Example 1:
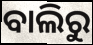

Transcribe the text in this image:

ବାଲିରୁ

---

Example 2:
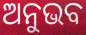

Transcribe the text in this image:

ଅନୁଭବ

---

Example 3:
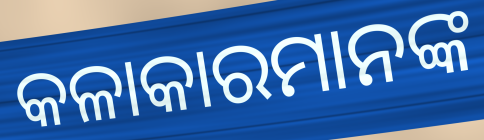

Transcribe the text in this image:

କଳାକାରମାନଙ୍କ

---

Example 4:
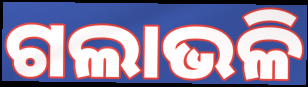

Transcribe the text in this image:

ଗଲାଭଳି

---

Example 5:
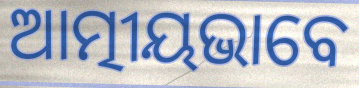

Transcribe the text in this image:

ଆତ୍ମୀୟଭାବେ